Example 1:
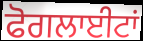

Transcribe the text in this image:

ਫੋਗਲਾਈਟਾਂ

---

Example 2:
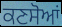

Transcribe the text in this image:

ਕਣਸੋਆਂ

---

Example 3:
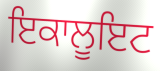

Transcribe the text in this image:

ਇਕਾਲੂਇਟ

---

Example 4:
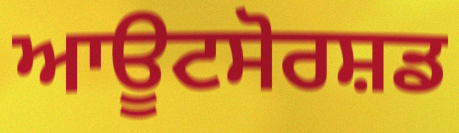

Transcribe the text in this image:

ਆਊਟਸੋਰਸ਼ਡ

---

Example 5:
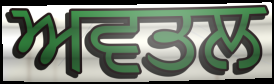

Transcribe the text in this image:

ਅਵਤਲ